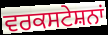
ਵਰਕਸਟੇਸ਼ਨਾਂ